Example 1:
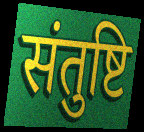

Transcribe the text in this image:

संतुष्टि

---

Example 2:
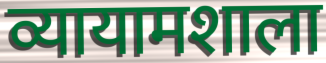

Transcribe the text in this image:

व्यायामशाला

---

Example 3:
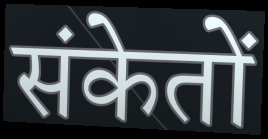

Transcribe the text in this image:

संकेतों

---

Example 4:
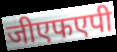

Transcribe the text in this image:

जीएफएपी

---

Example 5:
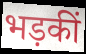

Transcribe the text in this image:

भड़कीं